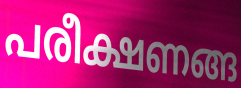
പരീക്ഷണങ്ങ